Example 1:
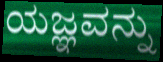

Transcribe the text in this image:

ಯಜ್ಞವನ್ನು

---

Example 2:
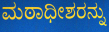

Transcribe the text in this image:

ಮಠಾಧೀಶರನ್ನು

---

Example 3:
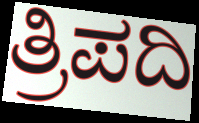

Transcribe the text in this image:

ತ್ರಿಪದಿ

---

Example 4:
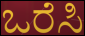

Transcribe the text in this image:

ಒರೆಸಿ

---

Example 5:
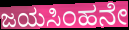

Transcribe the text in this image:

ಜಯಸಿಂಹನೇ